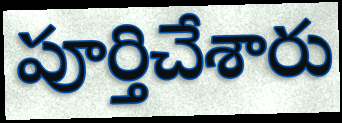
పూర్తిచేశారు